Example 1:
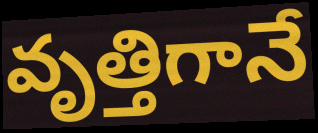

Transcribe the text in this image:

వృత్తిగానే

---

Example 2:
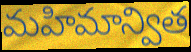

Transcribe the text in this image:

మహిమాన్విత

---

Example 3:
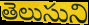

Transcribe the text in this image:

తెలుసుని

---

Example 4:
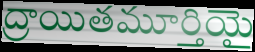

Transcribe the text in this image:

ద్రాయితమూర్తియై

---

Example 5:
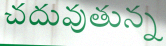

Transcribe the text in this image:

చదువుతున్న